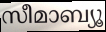
സീമാബ്യൂ